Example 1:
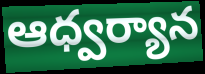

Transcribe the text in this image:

ఆధ్వర్యాన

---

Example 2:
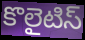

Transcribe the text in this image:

కొలైటిస్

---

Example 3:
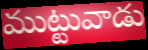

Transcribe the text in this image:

ముట్టువాడు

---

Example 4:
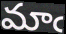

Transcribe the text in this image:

మాఁ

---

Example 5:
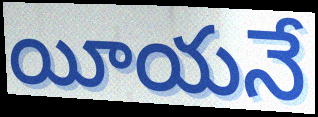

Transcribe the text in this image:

యీయనే